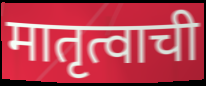
मातृत्वाची